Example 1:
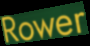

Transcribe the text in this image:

Rower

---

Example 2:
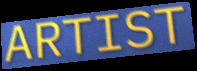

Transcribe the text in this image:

ARTIST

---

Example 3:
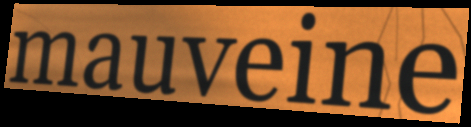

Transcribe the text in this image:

mauveine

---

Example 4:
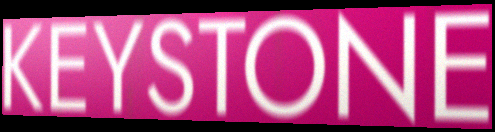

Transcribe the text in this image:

KEYSTONE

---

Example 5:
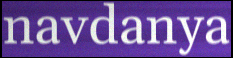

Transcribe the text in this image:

navdanya